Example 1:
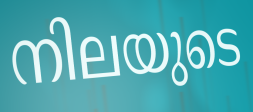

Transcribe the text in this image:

നിലയുടെ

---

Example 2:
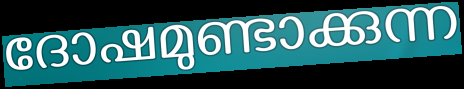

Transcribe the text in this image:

ദോഷമുണ്ടാക്കുന്ന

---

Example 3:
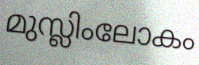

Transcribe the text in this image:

മുസ്ലിംലോകം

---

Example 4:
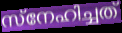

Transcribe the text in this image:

സ്‌നേഹിച്ചത്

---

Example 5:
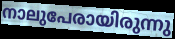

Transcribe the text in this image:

നാലുപേരായിരുന്നു